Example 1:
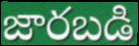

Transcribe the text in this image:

జారబడి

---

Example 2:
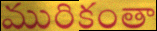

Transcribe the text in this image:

మురికంతా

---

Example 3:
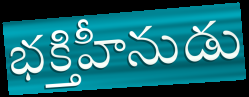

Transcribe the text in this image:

భక్తిహీనుడు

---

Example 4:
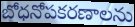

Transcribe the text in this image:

బోధనోపకరణాలను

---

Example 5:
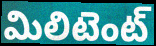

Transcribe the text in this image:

మిలిటెంట్